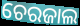
ଚେରଜାଲ